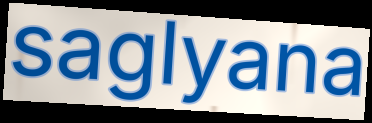
saglyana